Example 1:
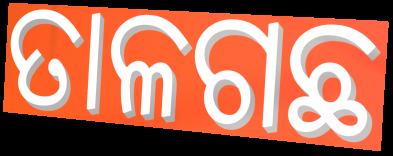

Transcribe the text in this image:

ତାଳଗଛ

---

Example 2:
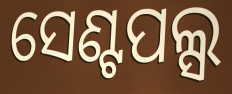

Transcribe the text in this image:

ସେଣ୍ଟପଲ୍ସ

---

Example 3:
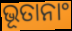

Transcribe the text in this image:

ଭୂତାନାଂ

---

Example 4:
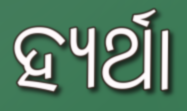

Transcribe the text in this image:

ହ୍ୟର୍ଥା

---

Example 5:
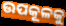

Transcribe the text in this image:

ଉପକୂଳକୁ